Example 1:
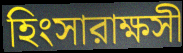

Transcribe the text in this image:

হিংসারাক্ষসী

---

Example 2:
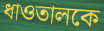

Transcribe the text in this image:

ধাওতালকে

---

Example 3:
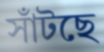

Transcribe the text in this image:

সাঁটছে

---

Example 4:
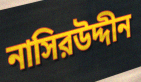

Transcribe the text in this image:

নাসিরউদ্দীন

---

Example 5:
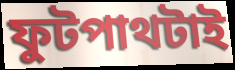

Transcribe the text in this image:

ফুটপাথটাই